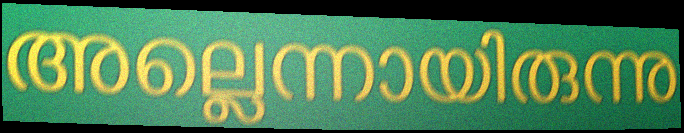
അല്ലെന്നായിരുന്നു